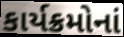
કાર્યક્રમોનાં